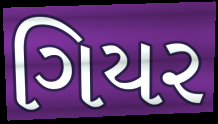
ગિયર